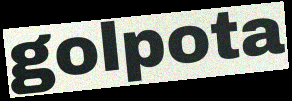
golpota